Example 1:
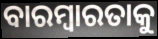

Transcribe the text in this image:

ବାରମ୍ବାରତାକୁ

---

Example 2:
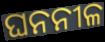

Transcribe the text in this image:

ଘନନୀଳ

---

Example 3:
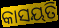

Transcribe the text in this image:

କାସୟତି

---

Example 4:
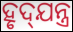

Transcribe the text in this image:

ହୃଦ୍‌ଯନ୍ତ୍ର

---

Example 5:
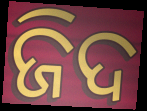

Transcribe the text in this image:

ଜିଦ